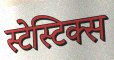
स्टेस्टिक्स